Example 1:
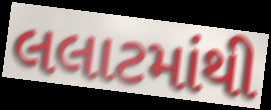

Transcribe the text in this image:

લલાટમાંથી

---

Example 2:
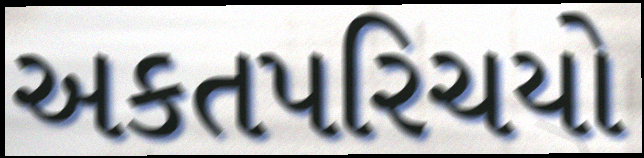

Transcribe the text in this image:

અકતપરિચયો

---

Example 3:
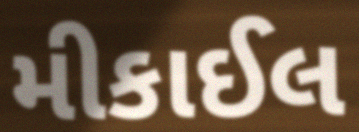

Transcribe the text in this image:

મીકાઈલ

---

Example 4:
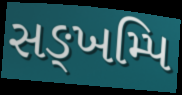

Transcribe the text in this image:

સઙ્ખમ્પિ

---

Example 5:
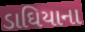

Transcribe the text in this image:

ડાઘિયાના